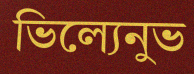
ভিল্যেনুভ